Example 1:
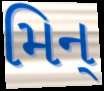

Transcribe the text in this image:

મિન્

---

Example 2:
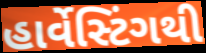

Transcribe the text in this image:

હાર્વેસ્ટિંગથી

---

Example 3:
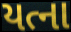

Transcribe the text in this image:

યત્ના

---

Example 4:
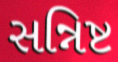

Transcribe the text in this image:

સન્નિષ્ટ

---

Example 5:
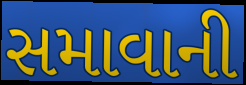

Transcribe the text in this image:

સમાવાની